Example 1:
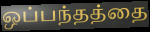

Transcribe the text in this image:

ஒப்பந்தத்தை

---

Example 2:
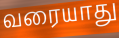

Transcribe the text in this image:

வரையாது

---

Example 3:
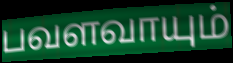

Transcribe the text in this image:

பவளவாயும்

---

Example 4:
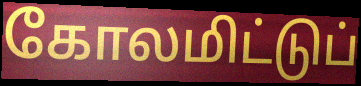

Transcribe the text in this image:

கோலமிட்டுப்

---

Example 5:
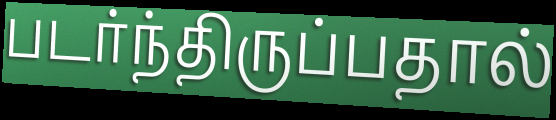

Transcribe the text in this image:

படர்ந்திருப்பதால்